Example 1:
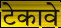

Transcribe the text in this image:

टेकावे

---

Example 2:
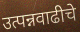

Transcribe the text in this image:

उत्पन्नवाढीचे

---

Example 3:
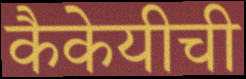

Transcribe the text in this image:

कैकेयीची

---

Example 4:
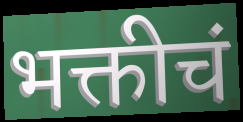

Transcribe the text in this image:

भक्तीचं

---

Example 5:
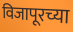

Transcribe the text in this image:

विजापूरच्या